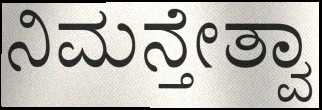
ನಿಮನ್ತೇತ್ವಾ